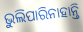
ଭୁଲିପାରିନାହାନ୍ତି